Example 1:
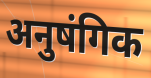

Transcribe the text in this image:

अनुषंगिक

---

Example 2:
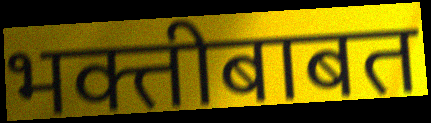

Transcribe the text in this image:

भक्तीबाबत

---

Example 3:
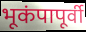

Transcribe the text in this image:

भूकंपापूर्वी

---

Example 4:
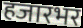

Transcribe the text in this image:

हजारभर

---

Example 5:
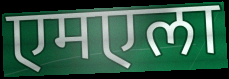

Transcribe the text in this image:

एमएला